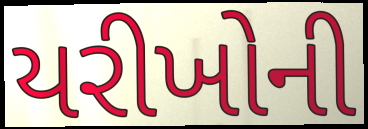
યરીખોની